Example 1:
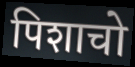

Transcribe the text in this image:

पिशाचो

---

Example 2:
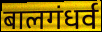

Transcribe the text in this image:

बालगंधर्व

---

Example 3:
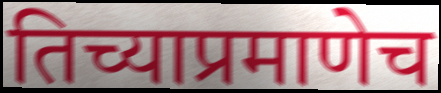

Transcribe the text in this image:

तिच्याप्रमाणेच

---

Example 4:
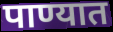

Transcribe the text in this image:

पाण्यात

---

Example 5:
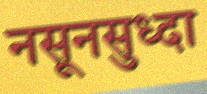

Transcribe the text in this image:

नसूनसुध्दा